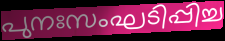
പുനഃസംഘടിപ്പിച്ച